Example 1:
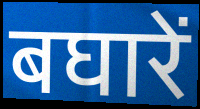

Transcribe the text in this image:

बघारें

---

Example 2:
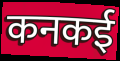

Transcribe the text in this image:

कनकई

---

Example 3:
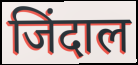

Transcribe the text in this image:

जिंदाल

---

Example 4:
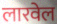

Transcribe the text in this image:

लारवेल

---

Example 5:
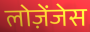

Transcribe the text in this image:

लोज़ेंजेस